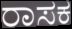
ರಾಸಕ